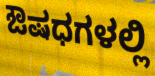
ಔಷಧಗಳಲ್ಲಿ